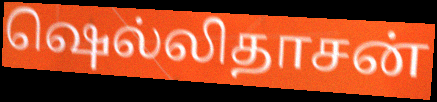
ஷெல்லிதாசன்